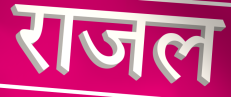
राजल